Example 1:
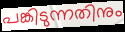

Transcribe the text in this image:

പങ്കിടുന്നതിനും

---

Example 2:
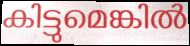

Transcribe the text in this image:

കിട്ടുമെങ്കിൽ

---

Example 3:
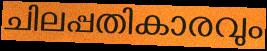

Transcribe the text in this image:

ചിലപ്പതികാരവും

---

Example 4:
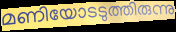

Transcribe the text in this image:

മണിയോടടുത്തിരുന്നു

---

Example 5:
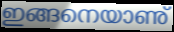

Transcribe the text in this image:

ഇങ്ങനെയാണു്